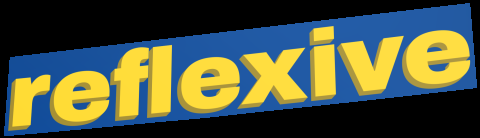
reflexive